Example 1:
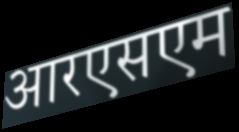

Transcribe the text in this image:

आरएसएम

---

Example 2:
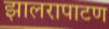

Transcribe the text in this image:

झालरापाटण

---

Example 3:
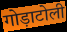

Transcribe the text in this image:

गोड़ाटोली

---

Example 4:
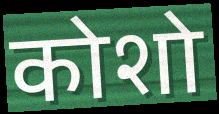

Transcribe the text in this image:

कोशो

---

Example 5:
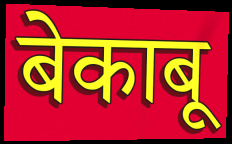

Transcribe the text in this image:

बेकाबू